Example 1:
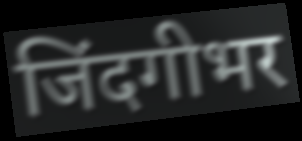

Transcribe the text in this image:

जिंदगीभर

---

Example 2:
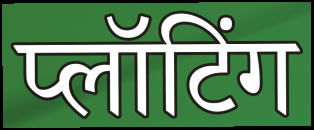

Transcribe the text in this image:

प्लॉटिंग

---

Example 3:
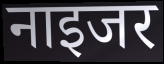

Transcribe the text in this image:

नाइजर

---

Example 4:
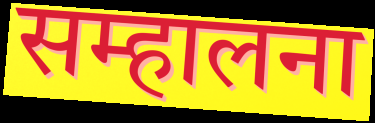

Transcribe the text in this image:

सम्हालना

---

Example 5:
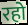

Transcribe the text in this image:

रहो